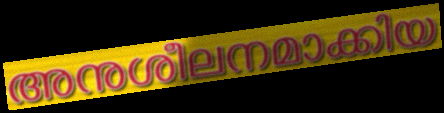
അനുശീലനമാക്കിയ